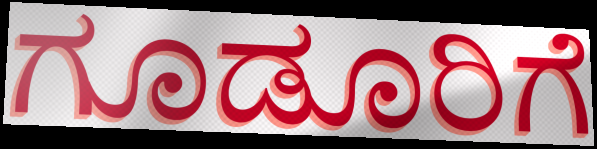
ಗೂಡೂರಿಗೆ